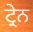
ਟ੍ਰੇਨ